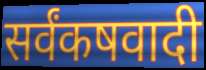
सर्वंकषवादी